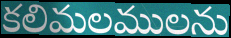
కలిమలములను